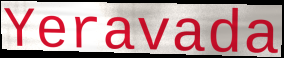
Yeravada